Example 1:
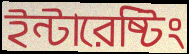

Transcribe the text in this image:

ইন্টারেষ্টিং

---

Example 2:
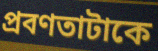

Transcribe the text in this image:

প্রবণতাটাকে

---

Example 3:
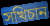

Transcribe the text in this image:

সখিচান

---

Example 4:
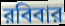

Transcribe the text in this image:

রবিবার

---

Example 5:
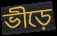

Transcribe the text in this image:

ভীড়ে